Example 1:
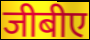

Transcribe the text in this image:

जीबीए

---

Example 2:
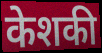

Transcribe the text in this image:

केशकी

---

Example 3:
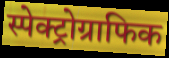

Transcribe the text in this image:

स्पेक्ट्रोग्राफिक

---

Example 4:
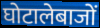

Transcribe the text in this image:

घोटालेबाजों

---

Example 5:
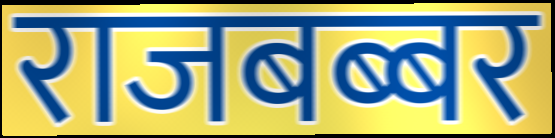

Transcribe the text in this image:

राजबब्बर